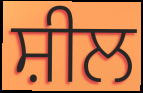
ਸ਼ੀਲ